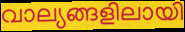
വാല്യങ്ങളിലായി